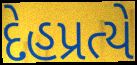
દેહપ્રત્યે